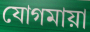
যোগমায়া